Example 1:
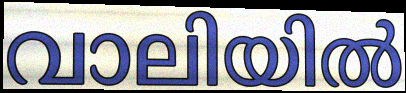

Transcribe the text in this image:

വാലിയിൽ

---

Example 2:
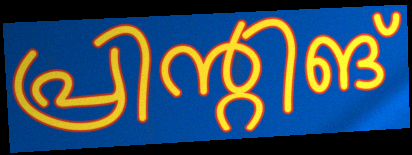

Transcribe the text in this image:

പ്രിന്റിങ്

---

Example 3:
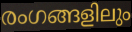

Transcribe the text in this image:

രംഗങ്ങളിലും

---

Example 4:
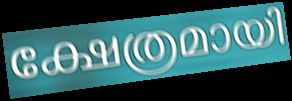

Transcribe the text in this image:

ക്ഷേത്രമായി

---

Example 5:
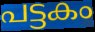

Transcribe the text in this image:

പട്ടകം